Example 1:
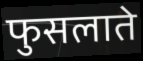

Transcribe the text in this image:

फुसलाते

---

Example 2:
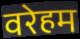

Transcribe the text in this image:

वरेहम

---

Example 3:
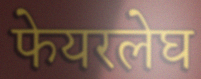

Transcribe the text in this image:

फेयरलेघ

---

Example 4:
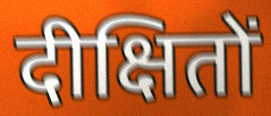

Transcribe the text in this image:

दीक्षितों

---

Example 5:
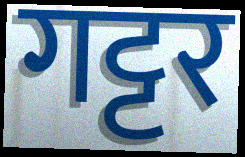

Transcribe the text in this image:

गट्टर